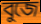
বুজে